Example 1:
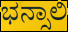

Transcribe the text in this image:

ಭನ್ಸಾಲಿ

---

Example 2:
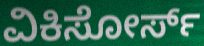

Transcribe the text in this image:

ವಿಕಿಸೋರ್ಸ್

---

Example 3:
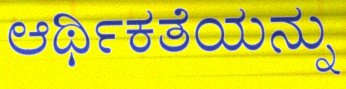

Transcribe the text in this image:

ಆರ್ಥಿಕತೆಯನ್ನು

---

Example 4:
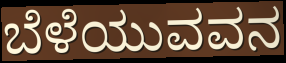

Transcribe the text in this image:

ಬೆಳೆಯುವವನ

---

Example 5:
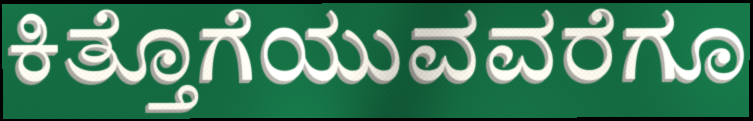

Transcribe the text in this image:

ಕಿತ್ತೊಗೆಯುವವರೆಗೂ